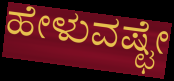
ಹೇಳುವಷ್ಟೇ